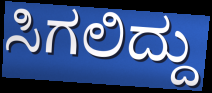
ಸಿಗಲಿದ್ದು